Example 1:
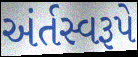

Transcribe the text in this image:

અંર્તસ્વરૂપે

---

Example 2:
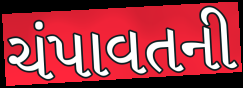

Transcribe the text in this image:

ચંપાવતની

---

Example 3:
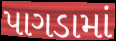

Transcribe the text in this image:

પાગડામાં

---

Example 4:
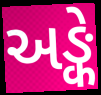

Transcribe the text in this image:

અઙ્કે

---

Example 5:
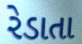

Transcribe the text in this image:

રેડાતા